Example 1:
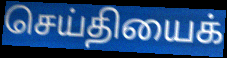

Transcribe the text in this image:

செய்தியைக்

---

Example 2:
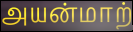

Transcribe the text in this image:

அயன்மாற்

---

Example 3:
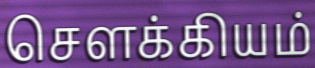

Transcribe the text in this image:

சௌக்கியம்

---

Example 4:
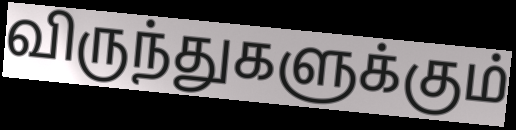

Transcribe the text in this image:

விருந்துகளுக்கும்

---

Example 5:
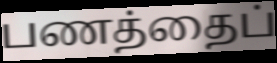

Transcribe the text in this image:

பணத்தைப்